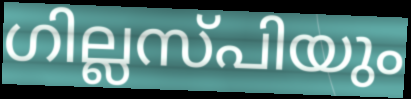
ഗില്ലസ്പിയും